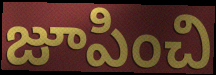
జూపించి